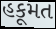
હકૂમત